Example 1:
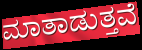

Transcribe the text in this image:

ಮಾತಾಡುತ್ತವೆ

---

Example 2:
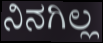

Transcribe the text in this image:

ನಿನಗಿಲ್ಲ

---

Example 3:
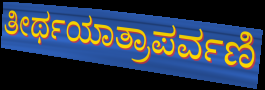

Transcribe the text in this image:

ತೀರ್ಥಯಾತ್ರಾಪರ್ವಣಿ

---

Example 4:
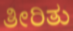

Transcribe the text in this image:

ತೀರಿತು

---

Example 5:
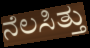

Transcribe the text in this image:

ನೆಲಸಿತ್ತು